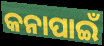
କନାପାଇଁ